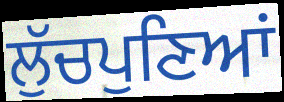
ਲੁੱਚਪੁਣਿਆਂ